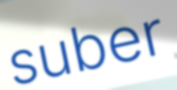
suber